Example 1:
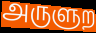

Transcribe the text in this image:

அருளுற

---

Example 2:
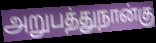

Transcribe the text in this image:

அறுபத்துநான்கு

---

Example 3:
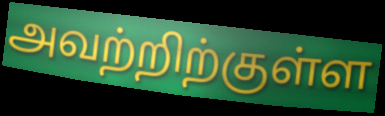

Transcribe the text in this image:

அவற்றிற்குள்ள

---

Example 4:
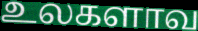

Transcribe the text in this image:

உலகளாவ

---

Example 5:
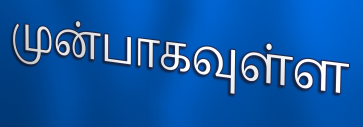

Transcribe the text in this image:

முன்பாகவுள்ள